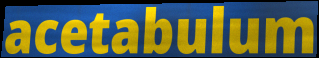
acetabulum